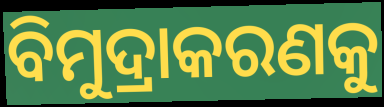
ବିମୁଦ୍ରାକରଣକୁ